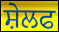
ਸ਼ੇਲਫ